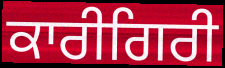
ਕਾਰੀਗਿਰੀ